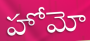
హోమో